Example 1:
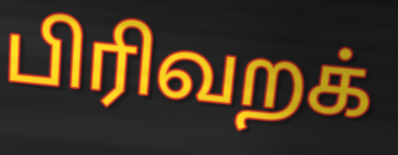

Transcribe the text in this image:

பிரிவறக்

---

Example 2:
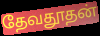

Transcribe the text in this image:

தேவதூதன்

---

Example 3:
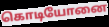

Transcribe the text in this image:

கொடியோனை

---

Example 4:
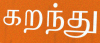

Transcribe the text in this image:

கறந்து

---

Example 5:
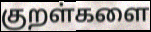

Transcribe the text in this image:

குறள்களை